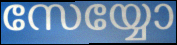
സേയ്യോ